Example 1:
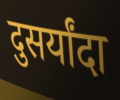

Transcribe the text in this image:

दुसर्यांदा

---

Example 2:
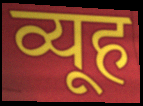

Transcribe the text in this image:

व्यूह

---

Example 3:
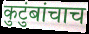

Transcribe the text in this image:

कुटुंबांचाच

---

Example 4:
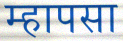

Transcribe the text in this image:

म्हापसा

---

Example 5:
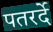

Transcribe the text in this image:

पतरर्दे